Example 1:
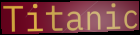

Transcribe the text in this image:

Titanic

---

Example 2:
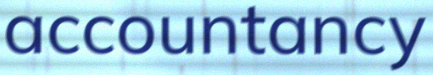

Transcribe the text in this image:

accountancy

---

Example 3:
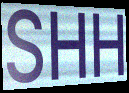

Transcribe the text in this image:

SHH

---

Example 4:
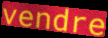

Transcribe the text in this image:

vendre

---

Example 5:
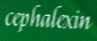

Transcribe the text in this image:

cephalexin